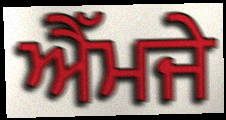
ਐੱਮਜੇ